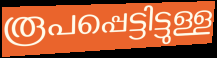
രൂപപ്പെട്ടിട്ടുള്ള